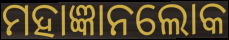
ମହାଜ୍ଞାନଲୋକ